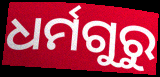
ଧର୍ମଗୁରୁ